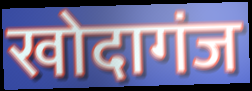
खोदागंज